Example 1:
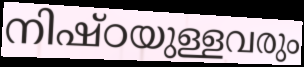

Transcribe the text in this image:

നിഷ്ഠയുള്ളവരും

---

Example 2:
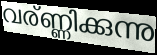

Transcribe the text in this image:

വര്ണ്ണിക്കുന്നു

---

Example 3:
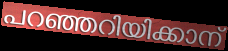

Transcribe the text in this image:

പറഞ്ഞറിയിക്കാന്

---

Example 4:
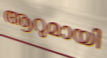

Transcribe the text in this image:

ആറുമായി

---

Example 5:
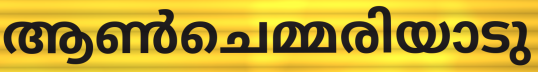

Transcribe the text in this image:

ആൺചെമ്മരിയാടു